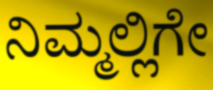
ನಿಮ್ಮಲ್ಲಿಗೇ